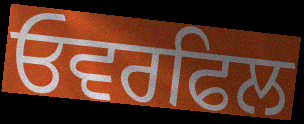
ਓਵਰਫਿਲ